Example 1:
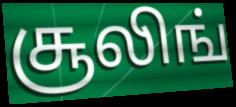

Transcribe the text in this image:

சூலிங்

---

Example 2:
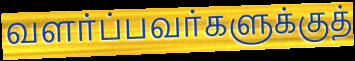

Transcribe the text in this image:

வளர்ப்பவர்களுக்குத்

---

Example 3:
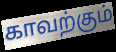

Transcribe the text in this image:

காவற்கும்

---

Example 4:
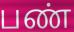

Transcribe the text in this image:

பண்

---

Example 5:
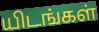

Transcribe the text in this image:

யிடங்கள்